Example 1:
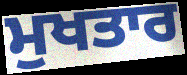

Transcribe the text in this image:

ਮੁਖਤਾਰ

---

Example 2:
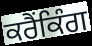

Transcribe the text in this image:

ਕਰੈਂਕਿੰਗ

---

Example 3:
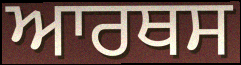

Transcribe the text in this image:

ਆਰਥਸ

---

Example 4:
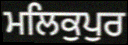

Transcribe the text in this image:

ਮਲਿਕੁਪੁਰ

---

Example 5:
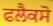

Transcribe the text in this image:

ਫਲੈਕਸੋ